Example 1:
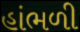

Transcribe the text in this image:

હાંભળી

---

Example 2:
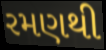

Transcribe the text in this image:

રમણથી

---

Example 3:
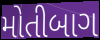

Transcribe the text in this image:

મોતીબાગ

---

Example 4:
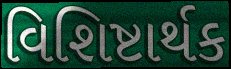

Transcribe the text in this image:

વિશિષ્ટાર્થક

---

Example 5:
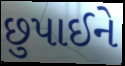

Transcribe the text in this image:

છુપાઈને